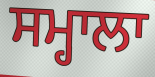
ਸਮ੍ਹ੍ਹਾਲਾ